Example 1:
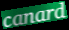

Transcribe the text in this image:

canard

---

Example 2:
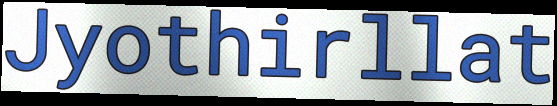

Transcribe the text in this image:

Jyothirllat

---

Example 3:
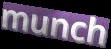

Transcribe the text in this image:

munch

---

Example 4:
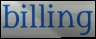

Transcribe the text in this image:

billing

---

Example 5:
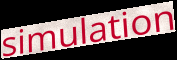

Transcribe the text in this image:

simulation